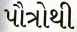
પૌત્રોથી